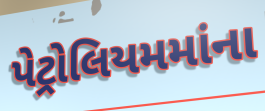
પેટ્રોલિયમમાંના